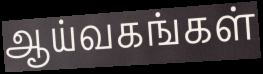
ஆய்வகங்கள்